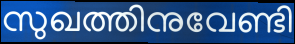
സുഖത്തിനുവേണ്ടി